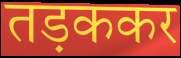
तड़ककर